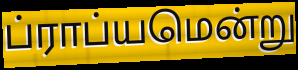
ப்ராப்யமென்று